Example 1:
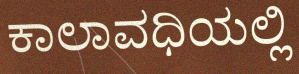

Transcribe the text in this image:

ಕಾಲಾವಧಿಯಲ್ಲಿ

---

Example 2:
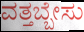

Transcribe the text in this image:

ವತ್ತಬ್ಬೇಸು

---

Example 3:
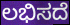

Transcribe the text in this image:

ಲಭಿಸದೆ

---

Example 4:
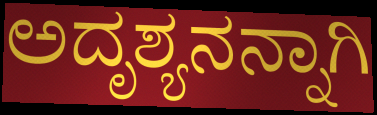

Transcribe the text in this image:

ಅದೃಶ್ಯನನ್ನಾಗಿ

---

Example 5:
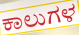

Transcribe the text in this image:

ಕಾಲುಗಳ